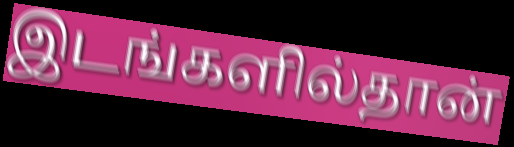
இடங்களில்தான்